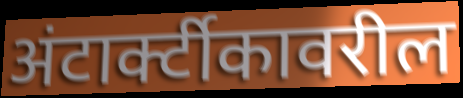
अंटार्क्टीकावरील